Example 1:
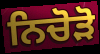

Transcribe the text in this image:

ਨਿਚੋੜੋ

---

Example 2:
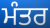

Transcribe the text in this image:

ਮੰਤਰ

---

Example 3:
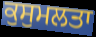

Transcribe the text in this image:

ਕੁਸੁਮਲਤਾ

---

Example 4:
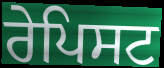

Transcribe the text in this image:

ਰੇਪਿਸਟ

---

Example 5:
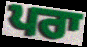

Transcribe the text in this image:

ਪਰਾ